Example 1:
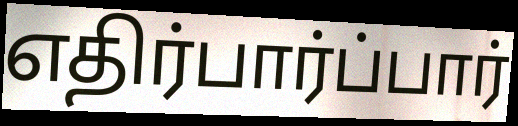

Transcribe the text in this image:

எதிர்பார்ப்பார்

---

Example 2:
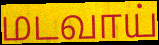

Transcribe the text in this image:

மடவாய்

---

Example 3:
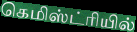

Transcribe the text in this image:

கெமிஸ்ட்ரியில்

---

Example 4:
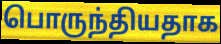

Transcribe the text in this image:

பொருந்தியதாக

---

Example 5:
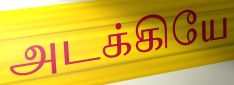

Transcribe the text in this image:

அடக்கியே